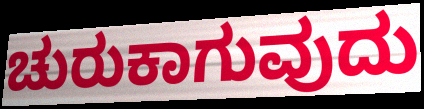
ಚುರುಕಾಗುವುದು